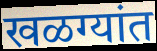
खळग्यांत